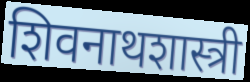
शिवनाथशास्त्री